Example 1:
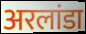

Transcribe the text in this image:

अरलांडा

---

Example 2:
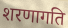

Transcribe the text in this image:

शरणागति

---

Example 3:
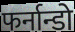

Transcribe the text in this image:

फर्नान्डो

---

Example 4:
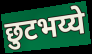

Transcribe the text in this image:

छुटभय्ये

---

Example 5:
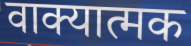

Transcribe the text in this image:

वाक्यात्मक